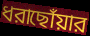
ধরাছোঁয়ার